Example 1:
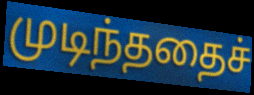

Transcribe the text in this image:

முடிந்ததைச்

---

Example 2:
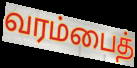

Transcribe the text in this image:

வரம்பைத்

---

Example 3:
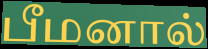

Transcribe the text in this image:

பீமனால்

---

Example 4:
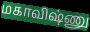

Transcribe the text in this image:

மகாவிஷ்ணு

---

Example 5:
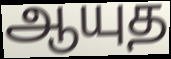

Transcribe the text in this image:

ஆயுத